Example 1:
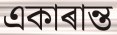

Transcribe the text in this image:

একাৰান্ত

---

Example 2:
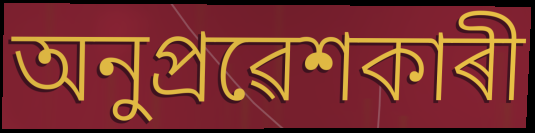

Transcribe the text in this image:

অনুপ্ৰৱেশকাৰী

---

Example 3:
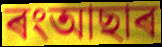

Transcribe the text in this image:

ৰংআছাৰ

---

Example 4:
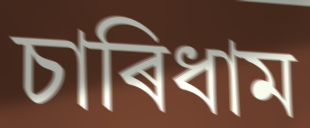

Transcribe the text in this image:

চাৰিধাম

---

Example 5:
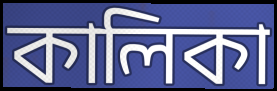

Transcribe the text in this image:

কালিকা